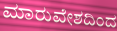
ಮಾರುವೇಶದಿಂದ